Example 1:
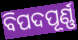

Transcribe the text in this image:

ବିପଦପୂର୍ଣ୍ଣ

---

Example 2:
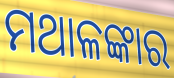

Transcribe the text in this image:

ମଥାଳଙ୍କାର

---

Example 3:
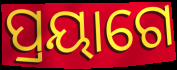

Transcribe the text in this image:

ପ୍ରୟାଗେ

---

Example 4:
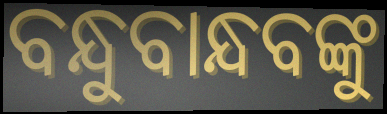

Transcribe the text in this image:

ବନ୍ଧୁବାନ୍ଧବଙ୍କୁ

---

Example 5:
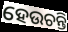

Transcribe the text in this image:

ହେଉଚନ୍ତି